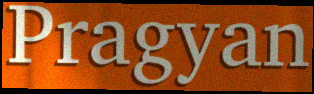
Pragyan